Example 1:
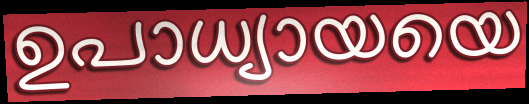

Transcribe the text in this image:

ഉപാധ്യായയെ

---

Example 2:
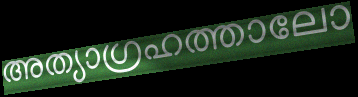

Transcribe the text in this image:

അത്യാഗ്രഹത്താലോ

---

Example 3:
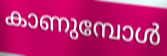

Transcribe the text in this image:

കാണുമ്പോൾ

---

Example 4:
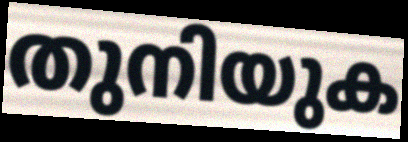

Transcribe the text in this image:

തുനിയുക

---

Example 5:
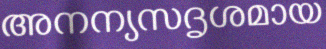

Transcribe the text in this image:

അനന്യസദൃശമായ